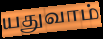
யதுவாம்